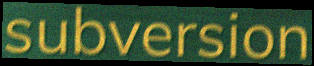
subversion